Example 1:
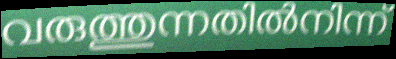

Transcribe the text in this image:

വരുത്തുന്നതിൽനിന്ന്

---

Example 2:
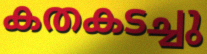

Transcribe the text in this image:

കതകടച്ചു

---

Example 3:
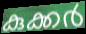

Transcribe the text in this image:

കുക്കർ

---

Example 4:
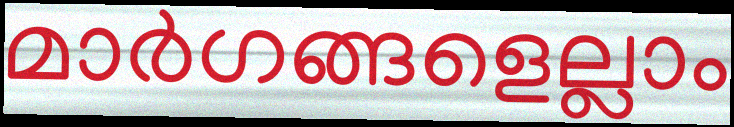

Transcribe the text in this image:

മാർഗങ്ങളെല്ലാം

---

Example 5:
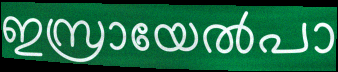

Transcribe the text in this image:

ഇസ്രായേൽപാ